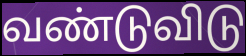
வண்டுவிடு